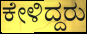
ಕೇಳಿದ್ದರು